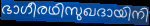
ഭാഗീരഥിസുഖദായിനി